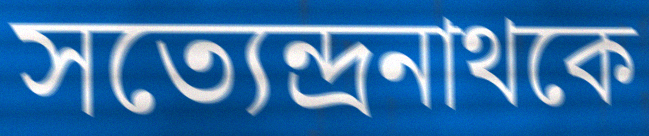
সত্যেন্দ্রনাথকে